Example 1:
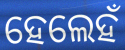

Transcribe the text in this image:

ହେଲେହଁ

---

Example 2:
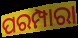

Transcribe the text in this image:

ପରମ୍ପାରା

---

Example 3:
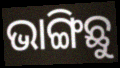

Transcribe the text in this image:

ଭାଙ୍ଗିଛୁ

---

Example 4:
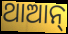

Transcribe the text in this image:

ଥାଆନ୍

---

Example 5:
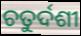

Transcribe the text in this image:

ଚତୁର୍ଦଶୀ